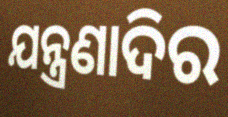
ଯନ୍ତ୍ରଣାଦିର